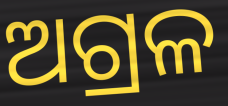
ଅଗ୍ରଳ